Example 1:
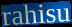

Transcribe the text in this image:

rahisu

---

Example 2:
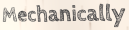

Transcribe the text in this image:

Mechanically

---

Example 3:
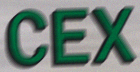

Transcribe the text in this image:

CEX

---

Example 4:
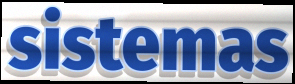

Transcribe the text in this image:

sistemas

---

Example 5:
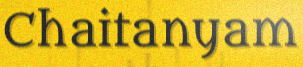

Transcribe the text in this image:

Chaitanyam